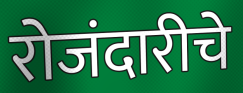
रोजंदारीचे